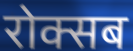
रोक्सब